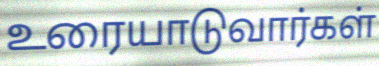
உரையாடுவார்கள்